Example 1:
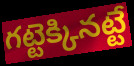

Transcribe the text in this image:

గట్టెక్కినట్టే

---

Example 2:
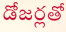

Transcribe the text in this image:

డోజర్లతో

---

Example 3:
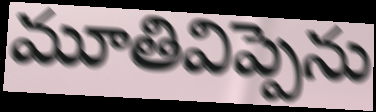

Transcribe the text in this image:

మూతివిప్పెను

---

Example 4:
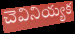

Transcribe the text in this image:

చెవినియ్యక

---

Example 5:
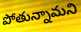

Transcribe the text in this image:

పోతున్నామని